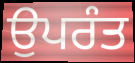
ਉਪਰੰਤ